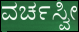
ವರ್ಚಸ್ವೀ